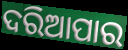
ଦରିଆପାର